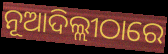
ନୂଆଦିଲ୍ଲୀଠାରେ